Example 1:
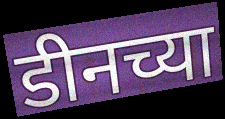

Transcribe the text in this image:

डीनच्या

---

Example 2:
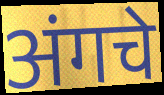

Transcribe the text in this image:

अंगचे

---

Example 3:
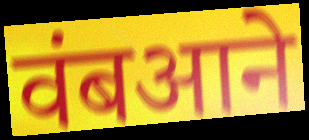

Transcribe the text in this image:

वंबआने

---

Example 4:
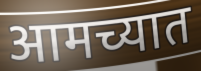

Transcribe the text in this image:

आमच्यात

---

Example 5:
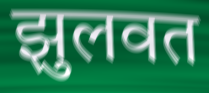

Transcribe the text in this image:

झुलवत